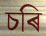
চৰি